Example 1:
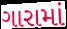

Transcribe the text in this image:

ગારામાં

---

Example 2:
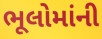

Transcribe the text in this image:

ભૂલોમાંની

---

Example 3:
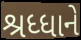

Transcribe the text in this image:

શ્રધ્ધાને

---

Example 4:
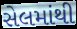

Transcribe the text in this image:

સેલમાંથી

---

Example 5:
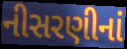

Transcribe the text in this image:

નીસરણીનાં